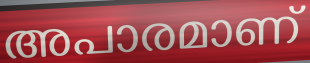
അപാരമാണ്